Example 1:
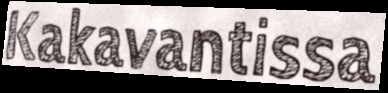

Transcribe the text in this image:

Kakavantissa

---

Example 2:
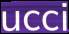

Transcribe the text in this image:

ucci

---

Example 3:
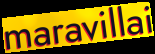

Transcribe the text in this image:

maravillai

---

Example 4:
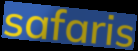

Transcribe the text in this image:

safaris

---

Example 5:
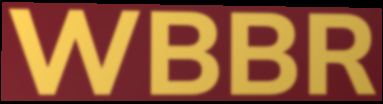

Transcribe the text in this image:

WBBR